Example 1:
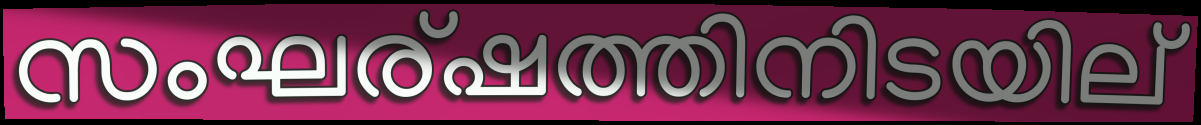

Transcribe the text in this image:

സംഘര്ഷത്തിനിടയില്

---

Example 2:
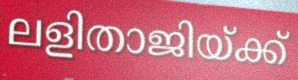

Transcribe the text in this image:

ലളിതാജിയ്ക്ക്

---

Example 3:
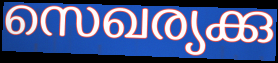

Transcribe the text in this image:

സെഖര്യക്കു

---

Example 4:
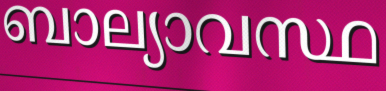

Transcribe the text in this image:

ബാല്യാവസ്ഥ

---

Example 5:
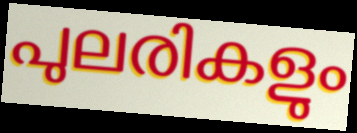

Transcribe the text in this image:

പുലരികളും